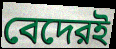
বেদেরই